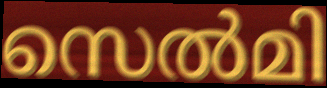
സെൽമി